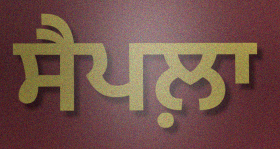
ਸੈਪਲ਼ਾ